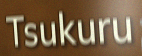
Tsukuru